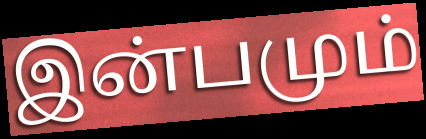
இன்பமும்